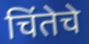
चिंतेचे